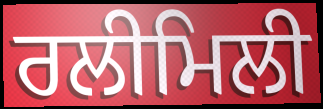
ਰਲੀਮਿਲੀ